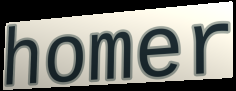
homer